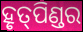
ହୃତ୍‍ପିଣ୍ଡର